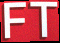
FT